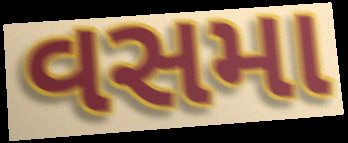
વસમા